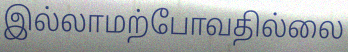
இல்லாமற்போவதில்லை